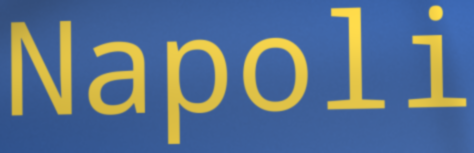
Napoli